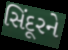
સિંદૂરને